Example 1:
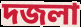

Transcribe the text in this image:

দজলা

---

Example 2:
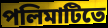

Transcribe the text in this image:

পলিমাটিতে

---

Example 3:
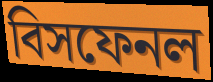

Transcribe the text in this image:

বিসফেনল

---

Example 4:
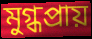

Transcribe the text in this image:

মুগ্ধপ্রায়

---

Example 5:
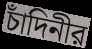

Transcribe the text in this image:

চাঁদিনীর